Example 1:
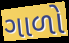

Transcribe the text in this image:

ગાળો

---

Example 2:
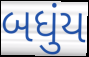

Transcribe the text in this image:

બધુંય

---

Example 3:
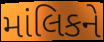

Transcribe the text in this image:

માંલિકને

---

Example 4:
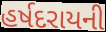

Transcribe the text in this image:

હર્ષદરાયની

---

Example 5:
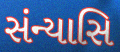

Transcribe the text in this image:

સંન્યાસિ